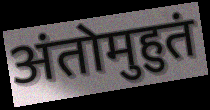
अंतोमुहुतं